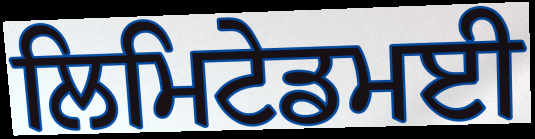
ਲਿਮਿਟੇਡਮਈ